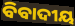
ବିବାଦୀୟ